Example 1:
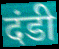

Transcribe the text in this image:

दंडी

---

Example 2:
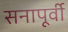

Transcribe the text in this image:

सनापूर्वी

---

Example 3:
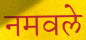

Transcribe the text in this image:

नमवले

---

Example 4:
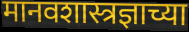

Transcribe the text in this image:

मानवशास्त्रज्ञाच्या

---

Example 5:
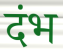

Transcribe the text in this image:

दंभ